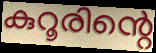
കുറൂരിന്റെ